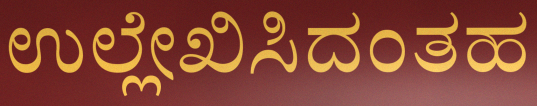
ಉಲ್ಲೇಖಿಸಿದಂತಹ